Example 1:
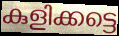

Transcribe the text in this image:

കുളിക്കട്ടെ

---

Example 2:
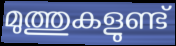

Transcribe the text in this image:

മുത്തുകളുണ്ട്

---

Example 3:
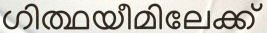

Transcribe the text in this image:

ഗിത്ഥയീമിലേക്ക്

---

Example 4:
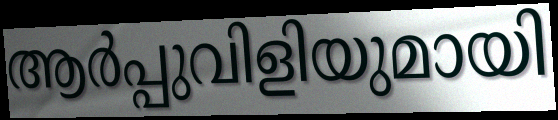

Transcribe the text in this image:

ആർപ്പുവിളിയുമായി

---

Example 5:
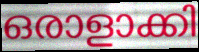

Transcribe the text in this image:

ഒരാളാക്കി